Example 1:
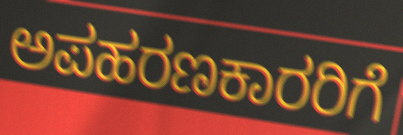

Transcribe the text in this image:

ಅಪಹರಣಕಾರರಿಗೆ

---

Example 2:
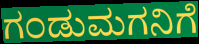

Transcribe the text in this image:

ಗಂಡುಮಗನಿಗೆ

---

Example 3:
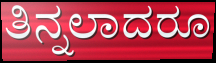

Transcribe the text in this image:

ತಿನ್ನಲಾದರೂ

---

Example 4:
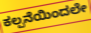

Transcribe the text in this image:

ಕಲ್ಪನೆಯಿಂದಲೇ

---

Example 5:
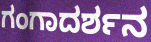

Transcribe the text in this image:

ಗಂಗಾದರ್ಶನ